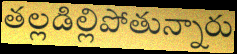
తల్లడిల్లిపోతున్నారు